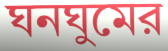
ঘনঘুমের